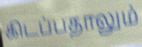
கிடப்பதாலும்